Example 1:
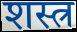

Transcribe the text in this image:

शस्त्र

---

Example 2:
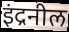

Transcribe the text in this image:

इंद्रनील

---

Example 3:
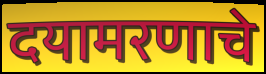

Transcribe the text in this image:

दयामरणाचे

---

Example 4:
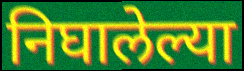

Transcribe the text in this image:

निघालेल्या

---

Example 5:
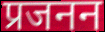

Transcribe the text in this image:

प्रजनन